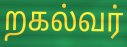
றகல்வர்